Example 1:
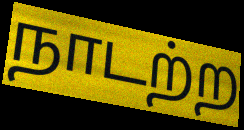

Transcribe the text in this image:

நாடற்ற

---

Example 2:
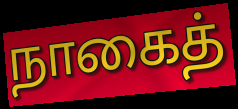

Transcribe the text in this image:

நாகைத்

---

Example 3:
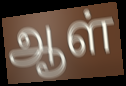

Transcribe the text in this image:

ஆள்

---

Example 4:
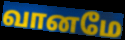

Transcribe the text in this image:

வானமே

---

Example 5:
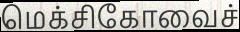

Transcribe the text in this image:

மெக்சிகோவைச்